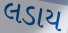
લડાય